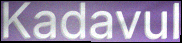
Kadavul